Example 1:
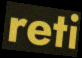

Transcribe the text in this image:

reti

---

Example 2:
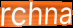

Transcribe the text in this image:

rchna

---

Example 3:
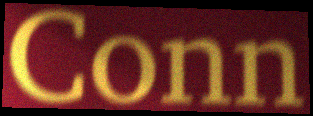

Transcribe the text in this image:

Conn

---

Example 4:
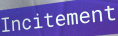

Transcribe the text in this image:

Incitement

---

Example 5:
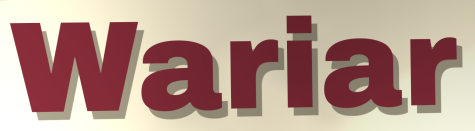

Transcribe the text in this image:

Wariar